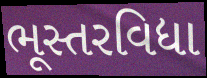
ભૂસ્તરવિદ્યા